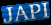
JAPI